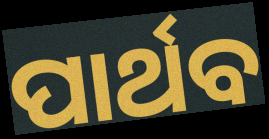
ପାର୍ଥବ